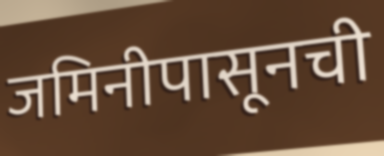
जमिनीपासूनची